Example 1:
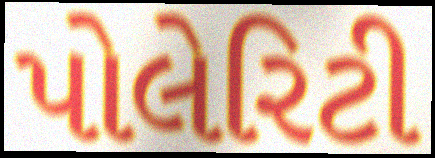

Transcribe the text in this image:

પોલેરિટી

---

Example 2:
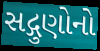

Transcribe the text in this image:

સદ્ગુણોનો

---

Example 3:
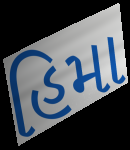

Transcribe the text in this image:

હિમા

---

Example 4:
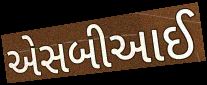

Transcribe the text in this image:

એસબીઆઈ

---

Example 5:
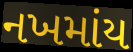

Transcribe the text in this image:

નખમાંય